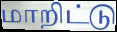
மாறிட்டு